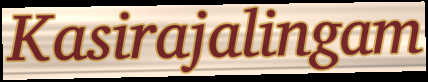
Kasirajalingam